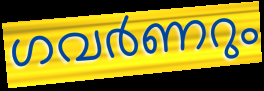
ഗവർണറും